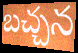
బచ్చన